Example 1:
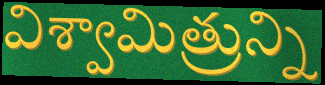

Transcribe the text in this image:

విశ్వామిత్రున్ని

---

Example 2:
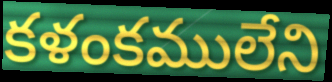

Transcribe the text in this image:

కళంకములేని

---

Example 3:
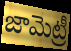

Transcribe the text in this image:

జామెట్రీ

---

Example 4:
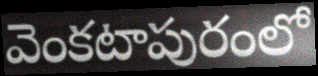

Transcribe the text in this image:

వెంకటాపురంలో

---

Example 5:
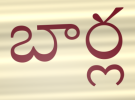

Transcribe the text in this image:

బార్ల